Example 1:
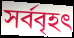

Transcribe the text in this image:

সর্ববৃহৎ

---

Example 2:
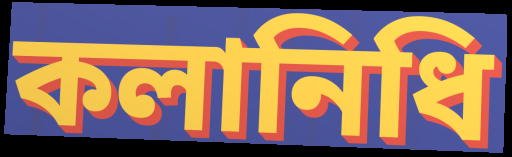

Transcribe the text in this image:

কলানিধি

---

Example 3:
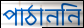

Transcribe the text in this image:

পাঠাননি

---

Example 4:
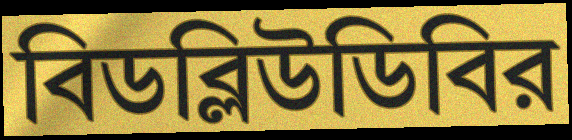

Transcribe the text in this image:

বিডব্লিউডিবির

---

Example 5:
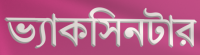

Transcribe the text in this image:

ভ্যাকসিনটার